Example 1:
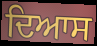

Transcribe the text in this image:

ਦਿਆਸ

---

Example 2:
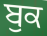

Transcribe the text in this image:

ਬੁਕ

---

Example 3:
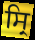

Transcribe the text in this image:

ਸ੍ਰਿ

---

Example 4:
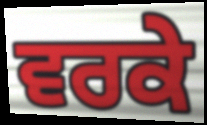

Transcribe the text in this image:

ਵਰਕੇ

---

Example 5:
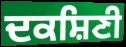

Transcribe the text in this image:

ਦਕਸ਼ਿਣੀ